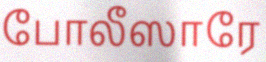
போலீஸாரே